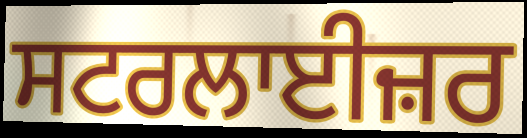
ਸਟਰਲਾਈਜ਼ਰ